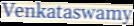
Venkataswamy